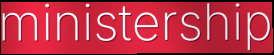
ministership